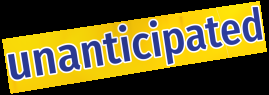
unanticipated